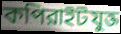
কপিরাইটযুক্ত